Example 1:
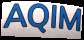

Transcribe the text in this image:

AQIM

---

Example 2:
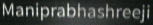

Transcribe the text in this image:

Maniprabhashreeji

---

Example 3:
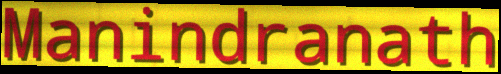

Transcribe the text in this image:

Manindranath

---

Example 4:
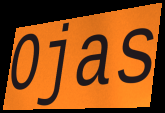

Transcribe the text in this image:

Ojas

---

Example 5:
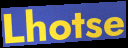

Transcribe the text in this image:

Lhotse